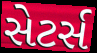
સેટર્સ